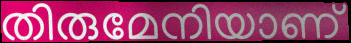
തിരുമേനിയാണ്